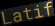
Latif